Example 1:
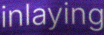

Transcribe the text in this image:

inlaying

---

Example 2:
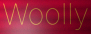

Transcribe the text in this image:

Woolly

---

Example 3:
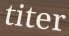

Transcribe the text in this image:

titer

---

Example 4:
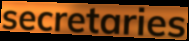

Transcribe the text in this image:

secretaries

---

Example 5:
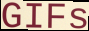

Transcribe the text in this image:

GIFs